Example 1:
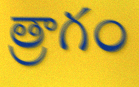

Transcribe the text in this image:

త్రాగం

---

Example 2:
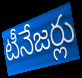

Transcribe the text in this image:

టీనేజర్లు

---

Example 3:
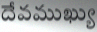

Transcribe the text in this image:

దేవముఖ్యు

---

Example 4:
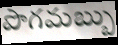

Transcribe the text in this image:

పొగమబ్బు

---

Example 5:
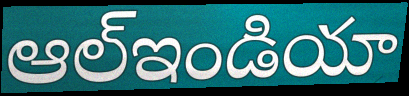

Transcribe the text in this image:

ఆల్ఇండియా